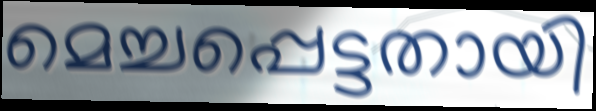
മെച്ചപ്പെട്ടതായി